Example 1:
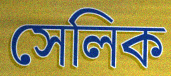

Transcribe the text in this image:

সেলিক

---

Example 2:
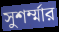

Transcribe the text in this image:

সুশর্ম্মার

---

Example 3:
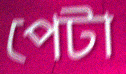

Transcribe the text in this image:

পেটা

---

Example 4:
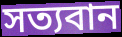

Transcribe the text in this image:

সত্যবান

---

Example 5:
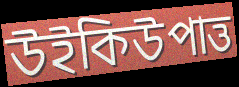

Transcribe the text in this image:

উইকিউপাত্ত